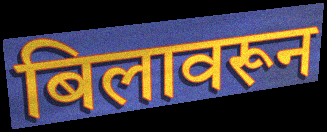
बिलावरून